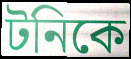
টনিকে